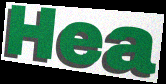
Hea